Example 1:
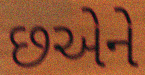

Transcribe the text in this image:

છએને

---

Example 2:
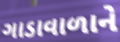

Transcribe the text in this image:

ગાડાવાળાને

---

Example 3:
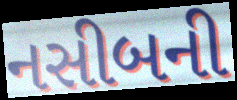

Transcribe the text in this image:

નસીબની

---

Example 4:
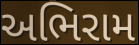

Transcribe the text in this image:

અભિરામ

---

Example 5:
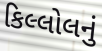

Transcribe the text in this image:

કિલ્લોલનું